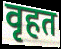
वृहत